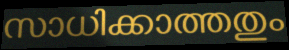
സാധിക്കാത്തതും